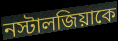
নস্টালজিয়াকে